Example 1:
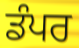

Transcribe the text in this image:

ਡੰਪਰ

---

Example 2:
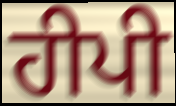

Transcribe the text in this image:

ਹੀਪੀ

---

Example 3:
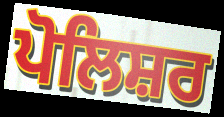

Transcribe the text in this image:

ਪੋਲਿਸ਼ਰ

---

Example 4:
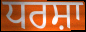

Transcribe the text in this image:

ਧਰਸ਼ਾ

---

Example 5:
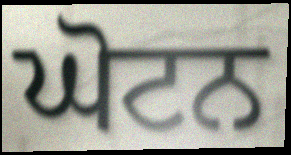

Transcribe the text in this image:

ਘੋਟਨ